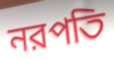
নরপতি